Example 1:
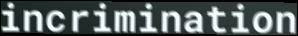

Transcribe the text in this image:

incrimination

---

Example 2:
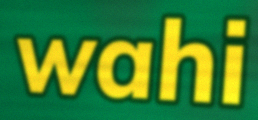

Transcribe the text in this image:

wahi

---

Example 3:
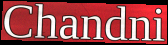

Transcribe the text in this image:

Chandni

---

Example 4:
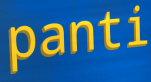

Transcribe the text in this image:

panti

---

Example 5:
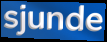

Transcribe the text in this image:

sjunde